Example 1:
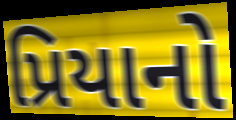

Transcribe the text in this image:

પ્રિયાનો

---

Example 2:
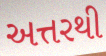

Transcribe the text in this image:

અત્તરથી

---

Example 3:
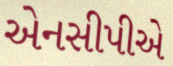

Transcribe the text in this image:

એનસીપીએ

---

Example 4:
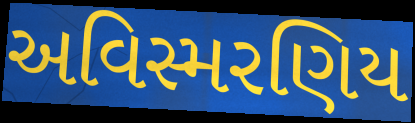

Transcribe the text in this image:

અવિસ્મરણિય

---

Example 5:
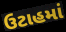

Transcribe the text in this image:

ઉટાહમાં